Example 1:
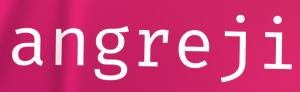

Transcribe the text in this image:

angreji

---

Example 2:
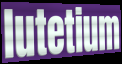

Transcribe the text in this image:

lutetium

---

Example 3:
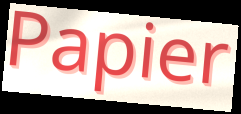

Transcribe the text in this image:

Papier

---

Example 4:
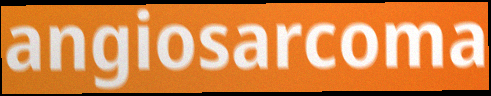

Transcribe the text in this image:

angiosarcoma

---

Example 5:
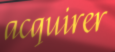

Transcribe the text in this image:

acquirer